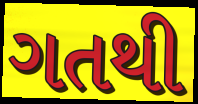
ગતથી